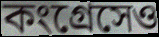
কংগ্রেসেও